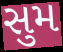
સુમ